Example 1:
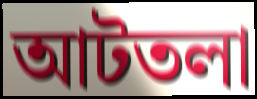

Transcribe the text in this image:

আটতলা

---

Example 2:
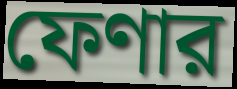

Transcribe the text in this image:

ফেণার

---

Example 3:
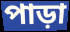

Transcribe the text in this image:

পাড়া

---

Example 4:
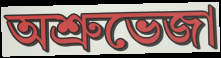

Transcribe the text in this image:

অশ্রুভেজা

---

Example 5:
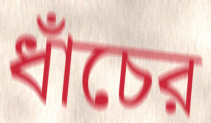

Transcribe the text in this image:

ধাঁচের